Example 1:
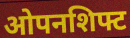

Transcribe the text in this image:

ओपनशिफ्ट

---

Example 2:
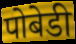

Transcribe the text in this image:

पोबेडी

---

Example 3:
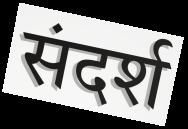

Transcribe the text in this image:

संदर्श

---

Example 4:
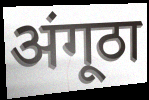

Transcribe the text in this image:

अंगूठा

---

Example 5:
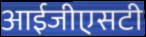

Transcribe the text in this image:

आईजीएसटी